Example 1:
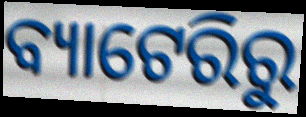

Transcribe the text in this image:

ବ୍ୟାଟେରିରୁ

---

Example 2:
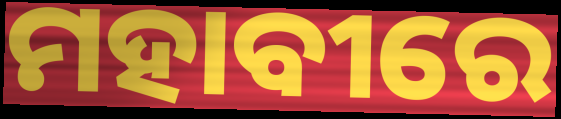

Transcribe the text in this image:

ମହାବୀରେ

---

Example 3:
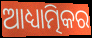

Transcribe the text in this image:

ଆଧ୍ୟାତ୍ମିକର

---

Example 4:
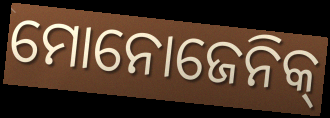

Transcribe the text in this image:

ମୋନୋଜେନିକ୍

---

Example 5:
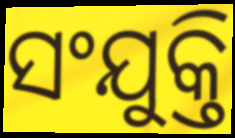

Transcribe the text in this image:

ସଂଯୁକ୍ତି